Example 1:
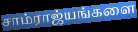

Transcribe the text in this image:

சாம்ராஜ்யங்களை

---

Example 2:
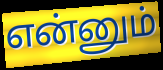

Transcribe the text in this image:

என்னும்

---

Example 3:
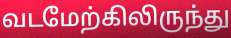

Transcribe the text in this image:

வடமேற்கிலிருந்து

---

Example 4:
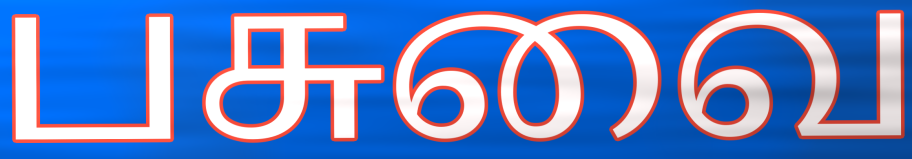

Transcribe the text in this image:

பசுவை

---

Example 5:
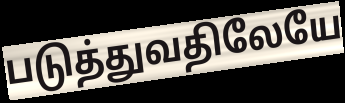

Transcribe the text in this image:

படுத்துவதிலேயே